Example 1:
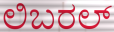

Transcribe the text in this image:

ಲಿಬರಲ್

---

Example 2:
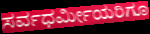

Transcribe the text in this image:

ಸರ್ವಧರ್ಮೀಯರಿಗೂ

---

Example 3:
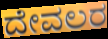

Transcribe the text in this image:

ದೇವಲರ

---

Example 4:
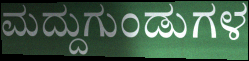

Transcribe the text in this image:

ಮದ್ದುಗುಂಡುಗಳ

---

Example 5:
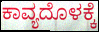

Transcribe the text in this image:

ಕಾವ್ಯದೊಳಕ್ಕೆ